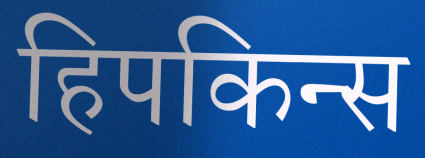
हिपकिन्स